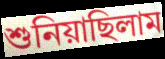
শুনিয়াছিলাম